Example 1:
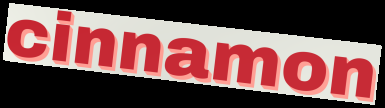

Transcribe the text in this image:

cinnamon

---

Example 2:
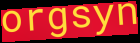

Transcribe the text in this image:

orgsyn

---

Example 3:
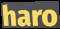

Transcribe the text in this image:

haro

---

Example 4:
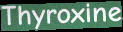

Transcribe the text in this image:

Thyroxine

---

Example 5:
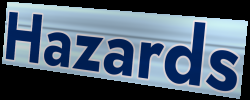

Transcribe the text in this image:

Hazards